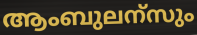
ആംബുലന്സും